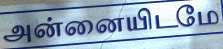
அன்னையிடமே